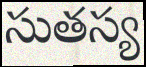
సుతస్య